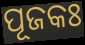
ପୂଜକଃ